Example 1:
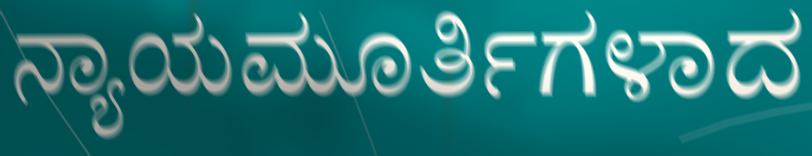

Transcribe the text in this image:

ನ್ಯಾಯಮೂರ್ತಿಗಳಾದ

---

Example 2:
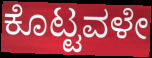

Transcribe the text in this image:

ಕೊಟ್ಟವಳೇ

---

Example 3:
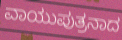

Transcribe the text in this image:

ವಾಯುಪುತ್ರನಾದ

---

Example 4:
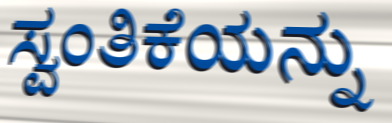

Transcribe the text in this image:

ಸ್ವಂತಿಕೆಯನ್ನು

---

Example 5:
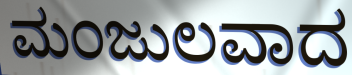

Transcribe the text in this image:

ಮಂಜುಲವಾದ